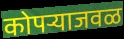
कोपऱ्याजवळ